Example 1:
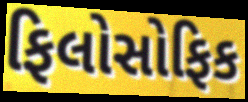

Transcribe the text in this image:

ફિલોસોફિક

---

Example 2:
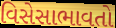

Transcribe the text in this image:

વિસેસાભાવતો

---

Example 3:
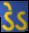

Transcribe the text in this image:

ડેડ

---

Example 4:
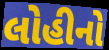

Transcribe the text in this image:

લોહીનો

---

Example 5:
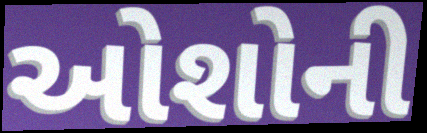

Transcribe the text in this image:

ઓશોની